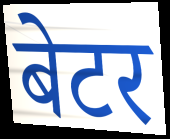
बेटर